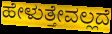
ಹೇಳುತ್ತೇವಲ್ಲದೆ